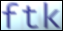
ftk